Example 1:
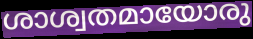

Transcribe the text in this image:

ശാശ്വതമായോരു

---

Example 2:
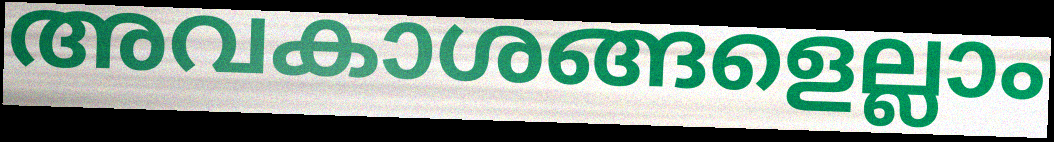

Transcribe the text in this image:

അവകാശങ്ങളെല്ലാം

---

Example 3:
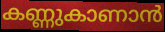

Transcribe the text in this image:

കണ്ണുകാണാൻ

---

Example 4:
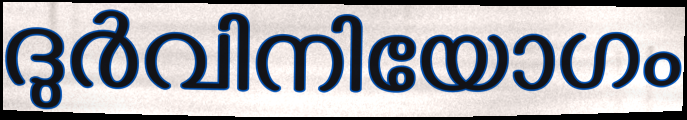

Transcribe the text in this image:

ദുർവിനിയോഗം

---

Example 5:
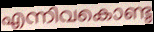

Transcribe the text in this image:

എന്നിവകൊണ്ടു